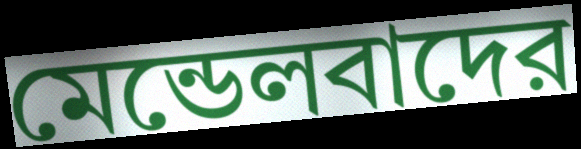
মেন্ডেলবাদের